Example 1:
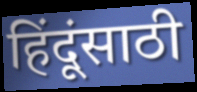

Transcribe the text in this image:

हिंदूंसाठी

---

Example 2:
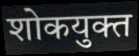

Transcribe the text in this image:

शोकयुक्त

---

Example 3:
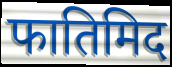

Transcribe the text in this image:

फातिमिद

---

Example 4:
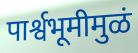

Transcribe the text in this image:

पार्श्वभूमीमुळं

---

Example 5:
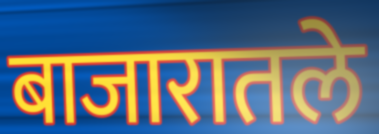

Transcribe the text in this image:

बाजारातले